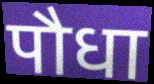
पौधा